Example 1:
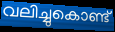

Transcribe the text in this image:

വലിച്ചുകൊണ്ട്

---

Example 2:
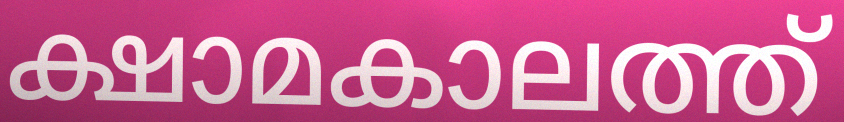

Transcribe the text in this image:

ക്ഷാമകാലത്ത്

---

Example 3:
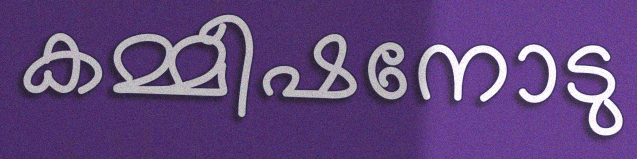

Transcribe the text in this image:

കമ്മീഷനോടു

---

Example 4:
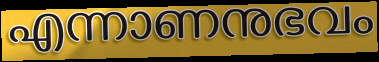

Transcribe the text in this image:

എന്നാണനുഭവം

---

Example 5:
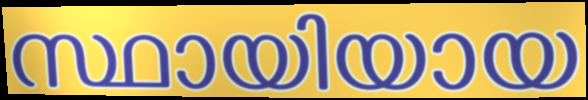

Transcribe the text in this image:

സ്ഥായിയായ